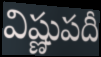
విష్ణుపదీ